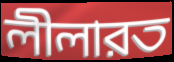
লীলারত